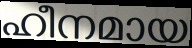
ഹീനമായ